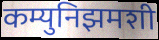
कम्युनिझमशी